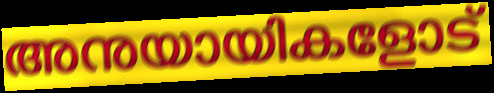
അനുയായികളോട്